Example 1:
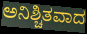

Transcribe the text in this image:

ಅನಿಶ್ಚಿತವಾದ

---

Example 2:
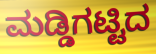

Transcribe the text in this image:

ಮಡ್ಡಿಗಟ್ಟಿದ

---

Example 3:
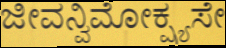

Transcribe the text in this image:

ಜೀವನ್ವಿಮೋಕ್ಷ್ಯಸೇ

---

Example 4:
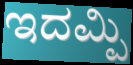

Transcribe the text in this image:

ಇದಮ್ಪಿ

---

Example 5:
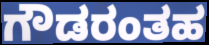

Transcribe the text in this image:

ಗೌಡರಂತಹ